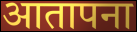
आतापना